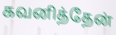
கவனித்தேன்